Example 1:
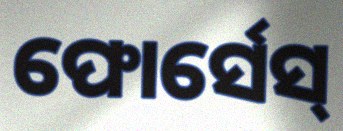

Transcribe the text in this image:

ଫୋର୍ସେସ୍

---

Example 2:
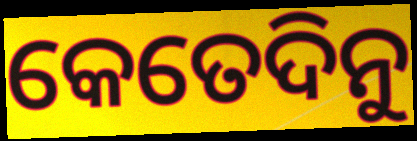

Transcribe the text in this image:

କେତେଦିନୁ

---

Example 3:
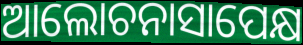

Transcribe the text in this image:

ଆଲୋଚନାସାପେକ୍ଷ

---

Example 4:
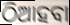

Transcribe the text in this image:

ଠିଆହବା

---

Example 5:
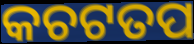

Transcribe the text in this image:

କଚଟତପ